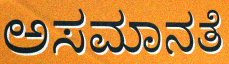
ಅಸಮಾನತೆ